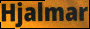
Hjalmar